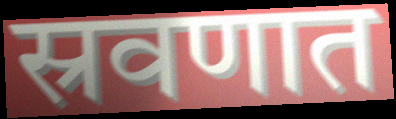
स्रवणात